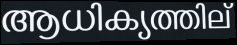
ആധിക്യത്തില്